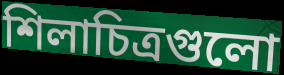
শিলাচিত্রগুলো